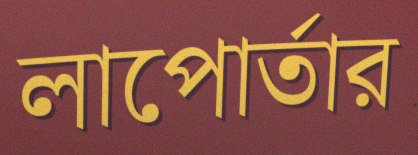
লাপোর্তার